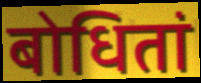
बोधितां